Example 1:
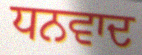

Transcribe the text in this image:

ਧਨਵਾਦ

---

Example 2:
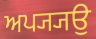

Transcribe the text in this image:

ਅਪ੍ਯ੍ਯਉ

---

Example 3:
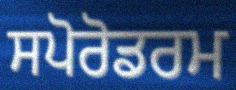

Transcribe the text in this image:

ਸਪੋਰੋਡਰਮ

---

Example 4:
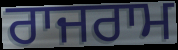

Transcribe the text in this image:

ਰਾਜਰਾਮ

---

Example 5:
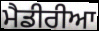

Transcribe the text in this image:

ਮੈਡੀਰੀਆ